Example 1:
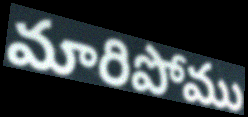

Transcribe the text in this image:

మారిపోము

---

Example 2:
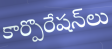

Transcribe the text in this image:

కార్పొరేషన్‌లు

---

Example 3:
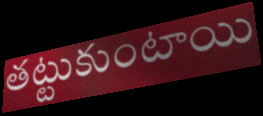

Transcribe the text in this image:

తట్టుకుంటాయి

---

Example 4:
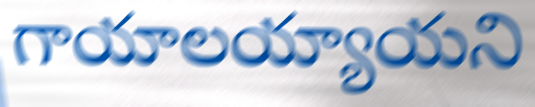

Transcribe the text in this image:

గాయాలయ్యాయని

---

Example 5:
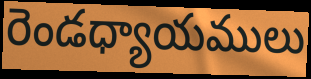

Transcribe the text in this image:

రెండధ్యాయములు